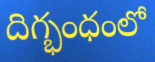
దిగ్భంధంలో